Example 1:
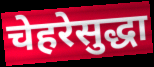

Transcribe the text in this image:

चेहरेसुद्धा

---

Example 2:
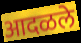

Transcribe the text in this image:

आदळले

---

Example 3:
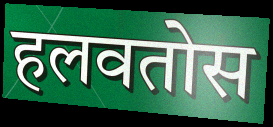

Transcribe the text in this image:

हलवतोस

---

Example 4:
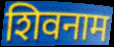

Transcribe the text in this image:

शिवनाम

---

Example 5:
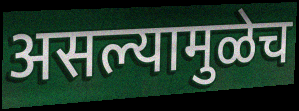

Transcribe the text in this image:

असल्यामुळेच